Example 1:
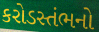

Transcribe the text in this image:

કરોડસ્તંભનો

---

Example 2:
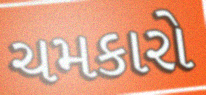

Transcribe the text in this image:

ચમકારો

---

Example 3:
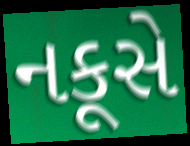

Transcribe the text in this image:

નકૂસે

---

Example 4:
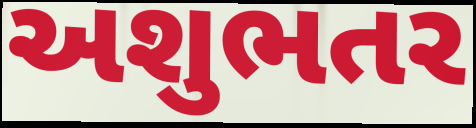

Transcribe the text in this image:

અશુભતર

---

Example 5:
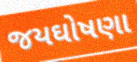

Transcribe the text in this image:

જયઘોષણા